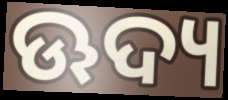
ଊଦ୍ୟ